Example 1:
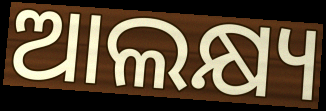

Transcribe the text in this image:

ଆଲକ୍ଷ୍ୟ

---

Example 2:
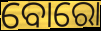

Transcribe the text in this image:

ବୋରୋ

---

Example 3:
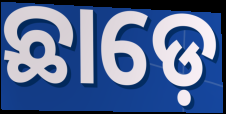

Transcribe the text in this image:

ଛାଡ଼େ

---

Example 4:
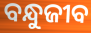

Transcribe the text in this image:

ବନ୍ଧୁଜୀବ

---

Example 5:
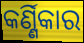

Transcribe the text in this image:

କର୍ଣ୍ଣିକାର